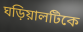
ঘড়িয়ালটিকে